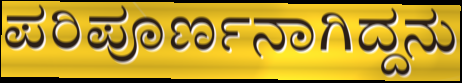
ಪರಿಪೂರ್ಣನಾಗಿದ್ದನು